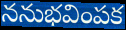
ననుభవింపక